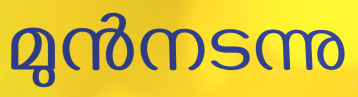
മുൻനടന്നു